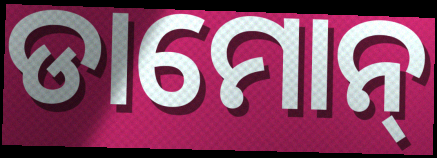
ଡାମୋନ୍